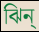
ঝিন্